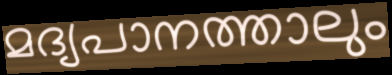
മദ്യപാനത്താലും